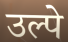
उल्पे